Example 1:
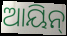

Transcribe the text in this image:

ଆୟିନ୍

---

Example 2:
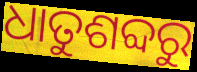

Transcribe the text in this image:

ଧାତୁଶବ୍ଦରୁ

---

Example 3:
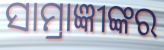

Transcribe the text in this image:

ସାମ୍ରାଜ୍ଞୀଙ୍କର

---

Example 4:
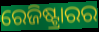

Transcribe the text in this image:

ରେଜିଷ୍ଟ୍ରାରର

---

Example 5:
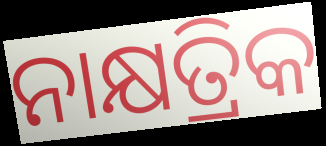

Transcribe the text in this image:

ନାକ୍ଷତ୍ରିକ